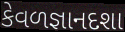
કેવળજ્ઞાનદશા